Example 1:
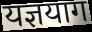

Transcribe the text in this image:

यज्ञयाग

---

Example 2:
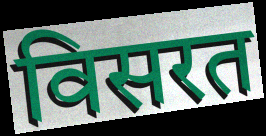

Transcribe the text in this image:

विसरत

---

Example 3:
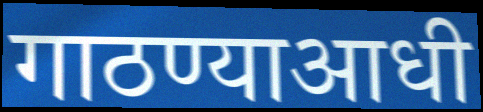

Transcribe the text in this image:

गाठण्याआधी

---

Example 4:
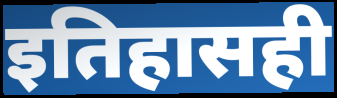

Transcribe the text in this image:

इतिहासही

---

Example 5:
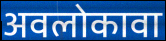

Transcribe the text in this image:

अवलोकावा